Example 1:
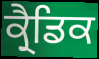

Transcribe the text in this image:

ਕ੍ਰੈਡਿਕ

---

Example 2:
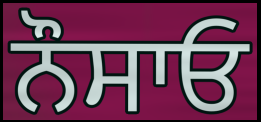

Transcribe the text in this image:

ਨੌਸਾਓ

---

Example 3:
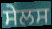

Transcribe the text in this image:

ਸੇਲਸ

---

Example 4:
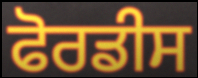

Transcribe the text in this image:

ਫੋਰਡੀਸ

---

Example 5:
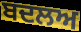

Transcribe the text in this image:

ਬਦਲਅ